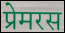
प्रेमरस